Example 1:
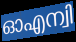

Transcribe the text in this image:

ഓഎന്വി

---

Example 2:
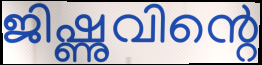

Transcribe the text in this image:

ജിഷ്ണുവിന്റെ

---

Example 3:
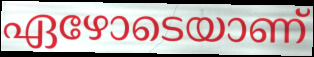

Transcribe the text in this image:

ഏഴോടെയാണ്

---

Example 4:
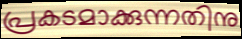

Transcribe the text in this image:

പ്രകടമാക്കുന്നതിനു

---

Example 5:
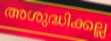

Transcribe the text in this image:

അശുദ്ധിക്കല്ല